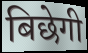
बिछेगी